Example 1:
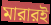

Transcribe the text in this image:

মারারই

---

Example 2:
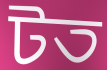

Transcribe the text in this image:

টত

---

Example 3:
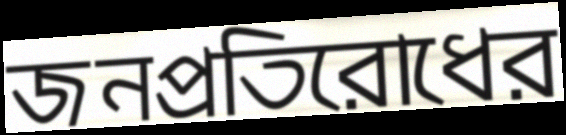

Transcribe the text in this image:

জনপ্রতিরোধের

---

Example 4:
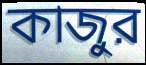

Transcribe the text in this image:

কাজুর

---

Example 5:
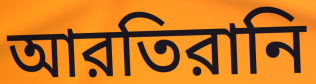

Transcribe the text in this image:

আরতিরানি